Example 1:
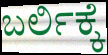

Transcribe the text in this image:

ಬರ್ಲಿಕ್ಕೆ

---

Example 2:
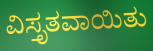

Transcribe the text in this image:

ವಿಸ್ತೃತವಾಯಿತು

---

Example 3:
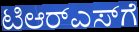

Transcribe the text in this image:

ಟಿಆರ್‌ಎಸ್‌ಗೆ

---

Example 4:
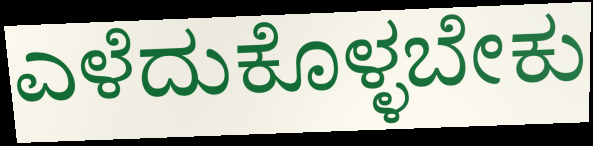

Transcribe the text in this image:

ಎಳೆದುಕೊಳ್ಳಬೇಕು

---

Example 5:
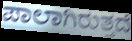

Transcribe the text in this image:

ಪಾಲಾಗಿರುತ್ತದೆ